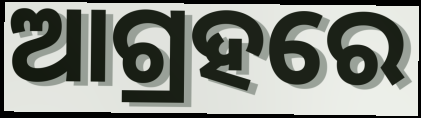
ଆଗ୍ରହରେ